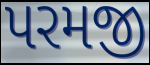
પરમજી